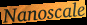
Nanoscale